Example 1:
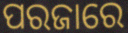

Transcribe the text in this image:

ପରଜାରେ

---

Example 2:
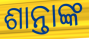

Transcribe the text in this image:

ଶାନ୍ତାଙ୍କ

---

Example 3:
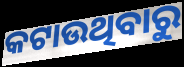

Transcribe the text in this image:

କଟାଉଥିବାରୁ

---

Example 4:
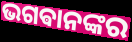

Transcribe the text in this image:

ଭଗଵାନଙ୍କର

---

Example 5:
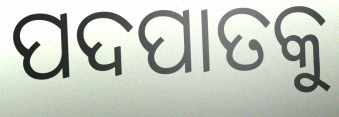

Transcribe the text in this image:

ପଦପାତକୁ